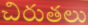
చిరుతలు